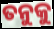
ତନୁକୁ